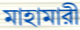
মাহামারী